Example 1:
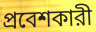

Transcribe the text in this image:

প্রবেশকারী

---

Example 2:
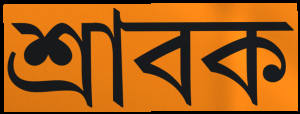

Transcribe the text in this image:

শ্রাবক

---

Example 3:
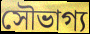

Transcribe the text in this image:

সৌভাগ্য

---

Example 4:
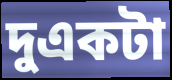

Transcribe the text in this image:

দুএকটা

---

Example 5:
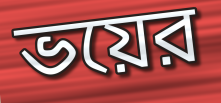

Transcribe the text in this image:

ভয়ের